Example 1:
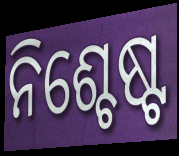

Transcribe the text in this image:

ନିଶ୍ଚେଷ୍ଟ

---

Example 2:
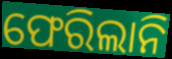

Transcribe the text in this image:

ଫେରିଲାନି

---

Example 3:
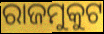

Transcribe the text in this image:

ରାଜମୁକୁଟ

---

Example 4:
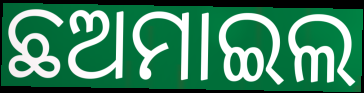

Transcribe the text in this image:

ଛଅମାଇଲ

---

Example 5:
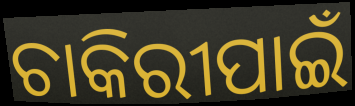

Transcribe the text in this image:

ଚାକିରୀପାଇଁ